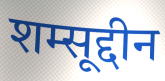
शम्सूद्दीन